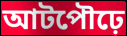
আটপৌঢ়ে